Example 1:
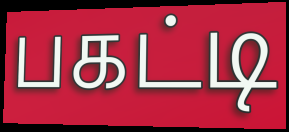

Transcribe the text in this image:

பகட்டி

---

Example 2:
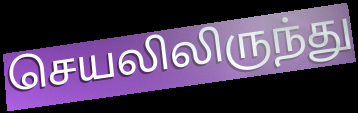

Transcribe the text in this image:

செயலிலிருந்து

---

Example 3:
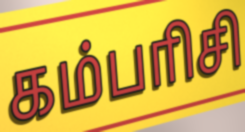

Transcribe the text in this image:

கம்பரிசி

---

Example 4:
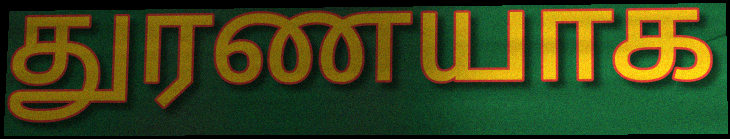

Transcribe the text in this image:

துரணயாக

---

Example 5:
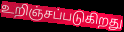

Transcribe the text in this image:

உறிஞ்சப்படுகிறது